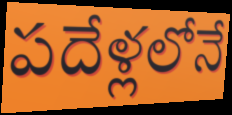
పదేళ్లలోనే